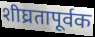
शीघ्रतापूर्वक